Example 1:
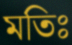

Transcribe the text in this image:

মতিঃ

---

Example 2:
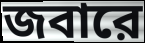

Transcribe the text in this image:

জবারে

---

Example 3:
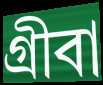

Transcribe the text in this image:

গ্রীবা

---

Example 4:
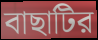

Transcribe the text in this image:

বাছাটির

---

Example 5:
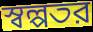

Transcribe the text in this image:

স্বল্পতর